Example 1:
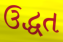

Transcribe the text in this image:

ઉદ્ધત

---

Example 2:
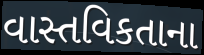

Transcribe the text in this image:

વાસ્તવિકતાના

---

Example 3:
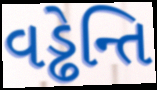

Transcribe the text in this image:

વડ્ઢેન્તિ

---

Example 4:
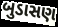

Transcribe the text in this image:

બુડાસણ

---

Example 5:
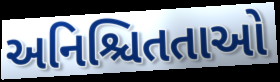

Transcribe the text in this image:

અનિશ્ચિતતાઓ